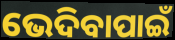
ଭେଦିବାପାଇଁ